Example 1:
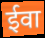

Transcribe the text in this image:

ईवा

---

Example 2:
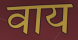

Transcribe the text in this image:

वाय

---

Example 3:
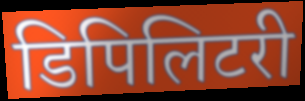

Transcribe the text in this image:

डिपिलिटरी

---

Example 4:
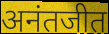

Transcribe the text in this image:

अनंतजीत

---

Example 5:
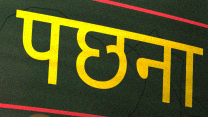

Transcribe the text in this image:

पछना